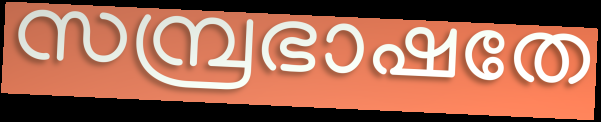
സമ്പ്രഭാഷതേ